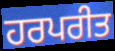
ਹਰਪਰੀਤ